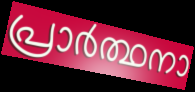
പ്രാർത്ഥനാ